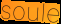
soule